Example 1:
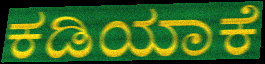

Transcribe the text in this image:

ಕಡಿಯಾಕೆ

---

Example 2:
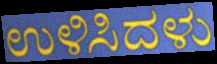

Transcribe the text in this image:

ಉಳಿಸಿದಳು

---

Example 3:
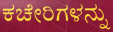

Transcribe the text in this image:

ಕಚೇರಿಗಳನ್ನು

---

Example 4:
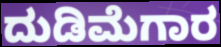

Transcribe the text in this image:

ದುಡಿಮೆಗಾರ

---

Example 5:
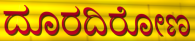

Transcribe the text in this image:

ದೂರದಿರೋಣ